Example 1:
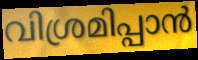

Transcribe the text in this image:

വിശ്രമിപ്പാൻ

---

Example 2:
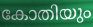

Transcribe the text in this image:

കോതിയും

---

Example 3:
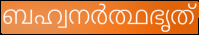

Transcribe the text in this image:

ബഹ്വനർത്ഥഭൃത്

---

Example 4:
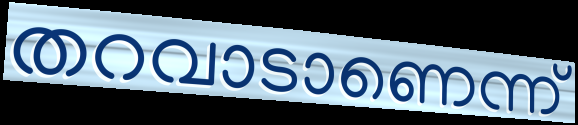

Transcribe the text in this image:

തറവാടാണെന്ന്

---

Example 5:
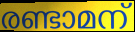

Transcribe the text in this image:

രണ്ടാമന്